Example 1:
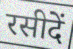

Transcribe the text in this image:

रसीदें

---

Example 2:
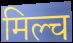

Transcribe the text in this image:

मिल्च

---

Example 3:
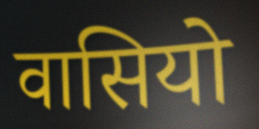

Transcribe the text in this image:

वासियो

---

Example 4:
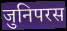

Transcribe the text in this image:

जुनिपरस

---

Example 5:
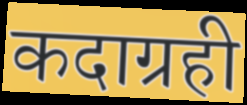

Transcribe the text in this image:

कदाग्रही